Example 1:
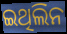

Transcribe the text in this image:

ଇଥିଲିନ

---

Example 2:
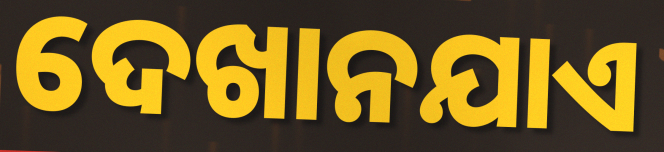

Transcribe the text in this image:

ଦେଖାନଯାଏ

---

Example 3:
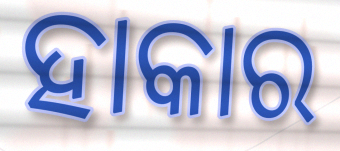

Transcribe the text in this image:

ହାକାର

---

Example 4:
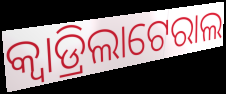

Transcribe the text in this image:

କ୍ୱାଡ୍ରିଲାଟେରାଲ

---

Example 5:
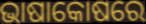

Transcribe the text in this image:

ଭାଷାକୋଷରେ